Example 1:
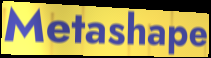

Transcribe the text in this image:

Metashape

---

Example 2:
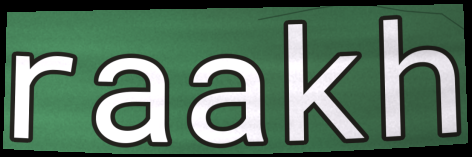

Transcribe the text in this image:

raakh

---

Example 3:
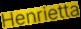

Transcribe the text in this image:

Henrietta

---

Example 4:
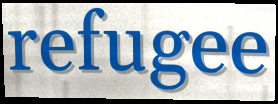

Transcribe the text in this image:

refugee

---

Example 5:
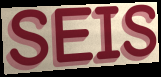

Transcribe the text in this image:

SEIS